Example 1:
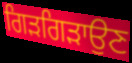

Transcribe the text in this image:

ਗਿੜਗਿੜਾਉਣ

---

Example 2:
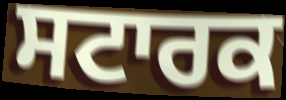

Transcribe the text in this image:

ਸਟਾਰਕ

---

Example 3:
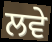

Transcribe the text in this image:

ਲਵੇ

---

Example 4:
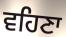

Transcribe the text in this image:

ਵਹਿਣਾ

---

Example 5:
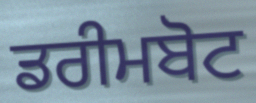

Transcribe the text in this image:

ਡਰੀਮਬੋਟ